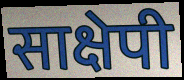
साक्षेपी